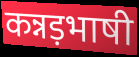
कन्नड़भाषी